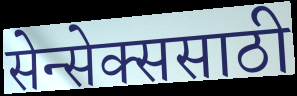
सेन्सेक्ससाठी